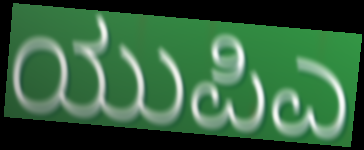
ಯುಪಿಎ